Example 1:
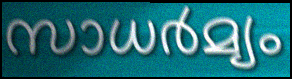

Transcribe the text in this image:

സാധർമ്യം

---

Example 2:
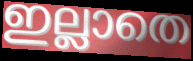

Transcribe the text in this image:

ഇല്ലാതെ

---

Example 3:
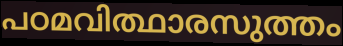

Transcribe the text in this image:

പഠമവിത്ഥാരസുത്തം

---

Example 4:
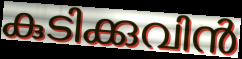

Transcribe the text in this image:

കുടിക്കുവിൻ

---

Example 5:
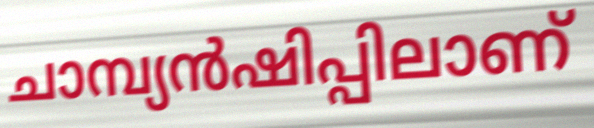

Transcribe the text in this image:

ചാമ്പ്യൻഷിപ്പിലാണ്